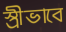
স্ত্রীভাবে